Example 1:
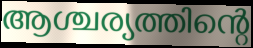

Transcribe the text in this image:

ആശ്ചര്യത്തിന്റെ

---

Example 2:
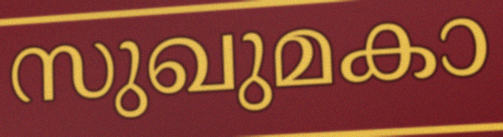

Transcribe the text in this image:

സുഖുമകാ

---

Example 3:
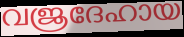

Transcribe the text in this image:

വജ്രദേഹായ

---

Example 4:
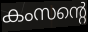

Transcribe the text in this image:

കംസന്റെ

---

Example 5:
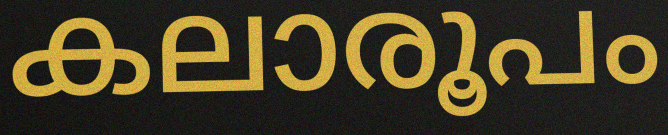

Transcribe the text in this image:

കലാരൂപം